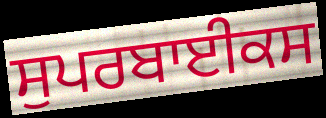
ਸੁਪਰਬਾਈਕਸ